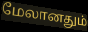
மேலானதும்